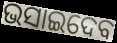
ଭସାଇଦେବ